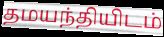
தமயந்தியிடம்